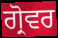
ਗ੍ਰੋਵਰ